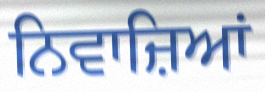
ਨਿਵਾਜ਼ਿਆਂ